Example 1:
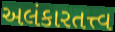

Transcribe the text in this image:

અલંકારતત્ત્વ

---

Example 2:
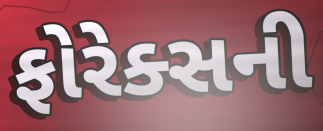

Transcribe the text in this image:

ફોરેક્સની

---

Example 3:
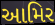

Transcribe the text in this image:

આમિર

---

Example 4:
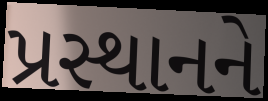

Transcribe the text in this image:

પ્રસ્થાનને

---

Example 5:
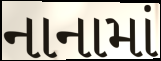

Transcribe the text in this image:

નાનામાં